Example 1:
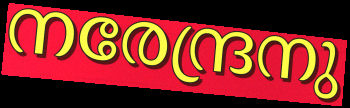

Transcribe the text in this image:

നരേന്ദ്രനു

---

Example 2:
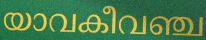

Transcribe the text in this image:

യാവകീവഞ്ച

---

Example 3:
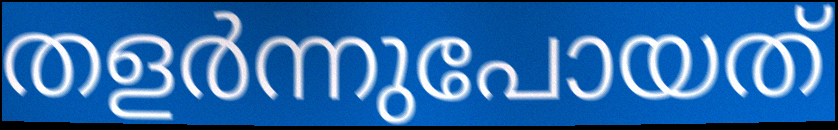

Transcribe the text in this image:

തളർന്നുപോയത്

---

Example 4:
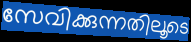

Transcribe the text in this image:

സേവിക്കുന്നതിലൂടെ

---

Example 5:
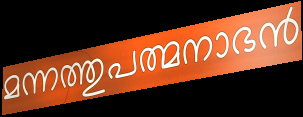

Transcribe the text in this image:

മന്നത്തുപത്മനാഭൻ